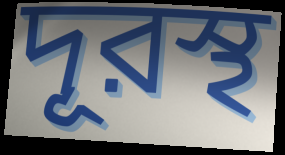
দূরস্থ